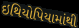
ઇથિયોપિયામાંથી